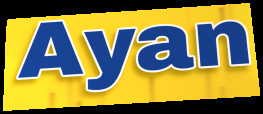
Ayan